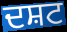
ਦਸ਼ਟ